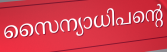
സൈന്യാധിപന്റെ